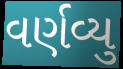
વર્ણવ્યુ